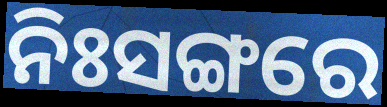
ନିଃସଙ୍ଗରେ